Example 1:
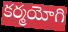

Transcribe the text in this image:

కర్మయోగి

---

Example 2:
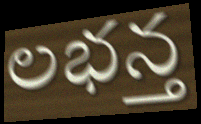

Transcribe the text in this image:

లభన్త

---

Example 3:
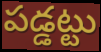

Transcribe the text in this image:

పడ్డట్టు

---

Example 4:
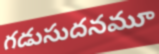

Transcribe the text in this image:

గడుసుదనమూ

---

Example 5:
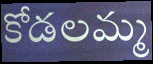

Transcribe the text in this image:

కోడలమ్మ